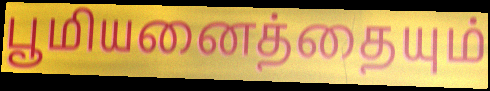
பூமியனைத்தையும்